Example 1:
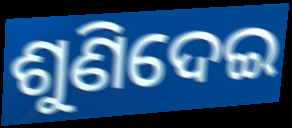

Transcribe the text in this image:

ଶୁଣିଦେଇ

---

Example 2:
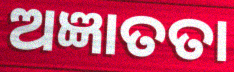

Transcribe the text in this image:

ଅଜ୍ଞାତତା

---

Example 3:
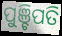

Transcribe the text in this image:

ପୁଞ୍ଚିପତି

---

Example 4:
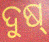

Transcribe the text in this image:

ଦୁଷ୍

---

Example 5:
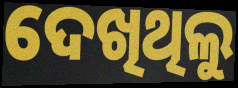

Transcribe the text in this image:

ଦେଖିଥିଲୁ